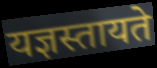
यज्ञस्तायते